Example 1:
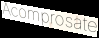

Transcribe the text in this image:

Acomprosate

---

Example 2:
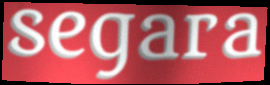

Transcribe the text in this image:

segara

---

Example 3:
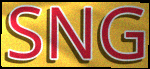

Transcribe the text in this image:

SNG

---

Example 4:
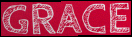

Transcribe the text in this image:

GRACE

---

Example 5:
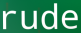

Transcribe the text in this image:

rude